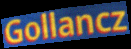
Gollancz